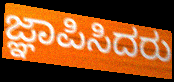
ಜ್ಞಾಪಿಸಿದರು